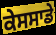
ਕੇਸਸਾਡੇ